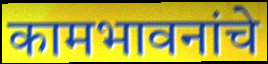
कामभावनांचे